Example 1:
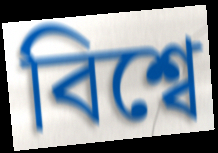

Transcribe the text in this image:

বিশ্বে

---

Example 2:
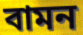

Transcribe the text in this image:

বামন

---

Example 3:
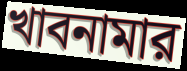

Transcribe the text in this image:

খাবনামার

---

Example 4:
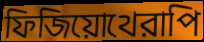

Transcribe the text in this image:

ফিজিয়োথেরাপি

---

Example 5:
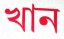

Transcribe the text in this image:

খান